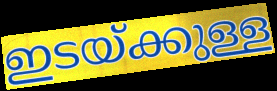
ഇടയ്ക്കുള്ള